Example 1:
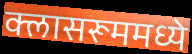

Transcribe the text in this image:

क्लासरूममध्ये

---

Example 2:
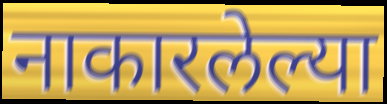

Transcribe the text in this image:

नाकारलेल्या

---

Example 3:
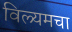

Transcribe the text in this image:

विल्यमचा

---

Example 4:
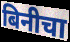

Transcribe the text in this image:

बिनीचा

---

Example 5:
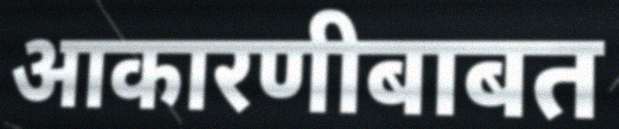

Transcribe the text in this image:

आकारणीबाबत